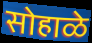
सोहाळे